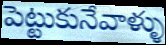
పెట్టుకునేవాళ్ళు